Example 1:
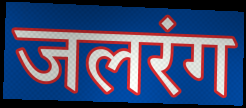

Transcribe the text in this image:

जलरंग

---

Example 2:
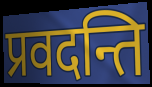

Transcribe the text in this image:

प्रवदन्ति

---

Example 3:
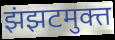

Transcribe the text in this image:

झंझटमुक्त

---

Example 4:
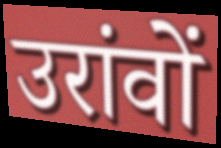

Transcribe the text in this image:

उरांवों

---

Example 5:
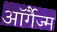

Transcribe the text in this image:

ऑर्गैज्म